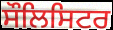
ਸੌਲਿਸਿਟਰ